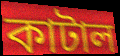
কাটাল